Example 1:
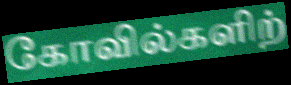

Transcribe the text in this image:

கோவில்களிற்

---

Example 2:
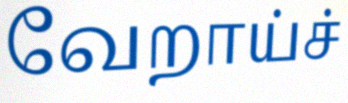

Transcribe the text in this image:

வேறாய்ச்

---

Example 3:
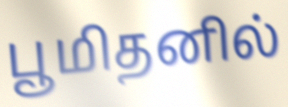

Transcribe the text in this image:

பூமிதனில்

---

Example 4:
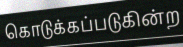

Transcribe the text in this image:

கொடுக்கப்படுகின்ற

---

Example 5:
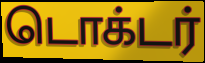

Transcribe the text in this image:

டொக்டர்